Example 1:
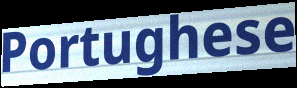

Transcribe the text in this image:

Portughese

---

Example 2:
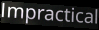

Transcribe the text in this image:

Impractical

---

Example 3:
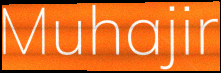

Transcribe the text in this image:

Muhajir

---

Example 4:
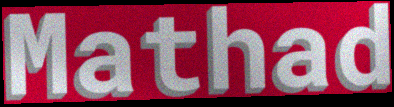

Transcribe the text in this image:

Mathad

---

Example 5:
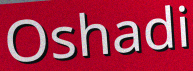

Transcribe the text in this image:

Oshadi